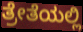
ತ್ರೇತೆಯಲ್ಲಿ